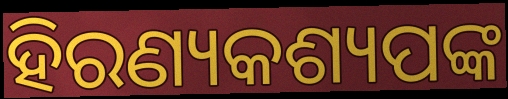
ହିରଣ୍ୟକଶ୍ୟପଙ୍କ